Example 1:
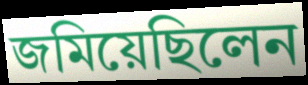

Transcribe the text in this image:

জমিয়েছিলেন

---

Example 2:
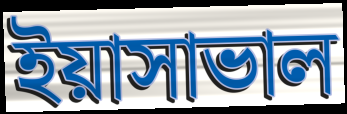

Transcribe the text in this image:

ইয়াসাভাল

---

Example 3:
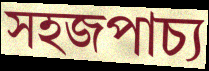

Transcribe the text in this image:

সহজপাচ্য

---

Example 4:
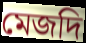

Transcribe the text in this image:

মেজদি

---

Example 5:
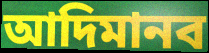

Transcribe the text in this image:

আদিমানব